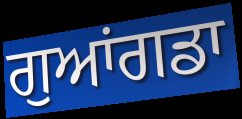
ਗੁਆਂਗਡਾ